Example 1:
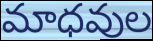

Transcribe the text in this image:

మాధవుల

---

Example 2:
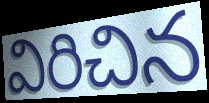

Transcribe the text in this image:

విరిచిన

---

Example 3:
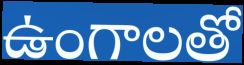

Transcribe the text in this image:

ఉంగాలతో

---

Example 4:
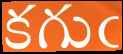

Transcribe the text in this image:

కగుఁ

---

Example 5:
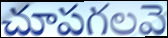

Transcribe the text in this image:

చూపగలవె